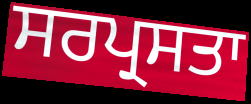
ਸਰਪ੍ਰਸਤਾ